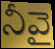
నీవై